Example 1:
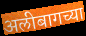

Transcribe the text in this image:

अलीबागच्या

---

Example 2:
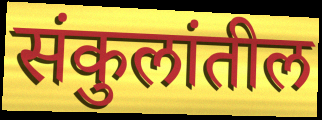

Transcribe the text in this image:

संकुलांतील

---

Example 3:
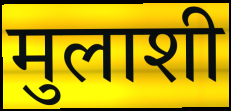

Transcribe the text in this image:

मुलाशी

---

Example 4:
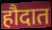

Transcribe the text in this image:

हौदात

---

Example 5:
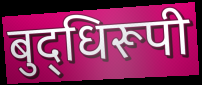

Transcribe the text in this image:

बुद्धिरूपी